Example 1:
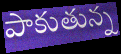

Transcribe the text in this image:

పాకుతున్న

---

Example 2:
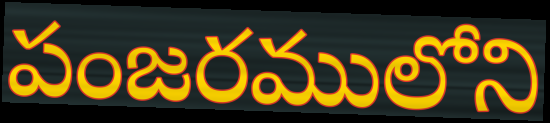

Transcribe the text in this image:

పంజరములోని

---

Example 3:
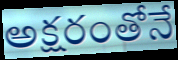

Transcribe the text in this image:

అక్షరంతోనే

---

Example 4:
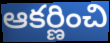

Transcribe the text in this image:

ఆకర్ణించి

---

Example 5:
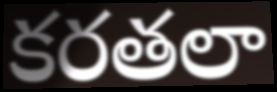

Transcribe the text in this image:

కరతలా